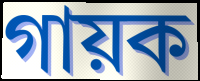
গায়ক